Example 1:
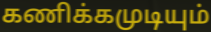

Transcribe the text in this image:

கணிக்கமுடியும்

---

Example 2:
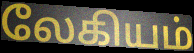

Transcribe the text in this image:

லேகியம்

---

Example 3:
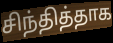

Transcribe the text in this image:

சிந்தித்தாக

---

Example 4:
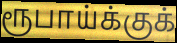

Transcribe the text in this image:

ரூபாய்க்குக்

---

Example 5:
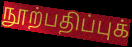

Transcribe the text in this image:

நூற்பதிப்புக்